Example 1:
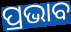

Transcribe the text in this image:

ପ୍ରଭାବ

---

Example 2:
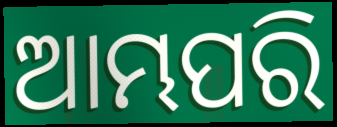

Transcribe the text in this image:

ଆମ୍ଭପରି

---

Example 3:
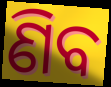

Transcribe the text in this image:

ଣିବ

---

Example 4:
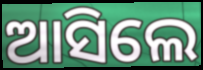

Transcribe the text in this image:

ଆସିଲେ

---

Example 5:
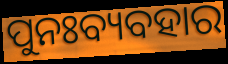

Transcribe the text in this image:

ପୁନଃବ୍ୟବହାର